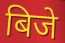
बिजे